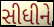
સીધીને